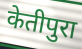
केतीपुरा